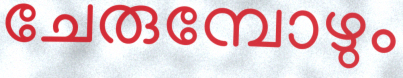
ചേരുമ്പോഴും